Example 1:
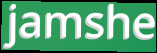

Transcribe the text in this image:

jamshe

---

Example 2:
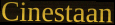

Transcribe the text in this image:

Cinestaan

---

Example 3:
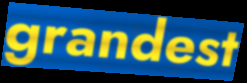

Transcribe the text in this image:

grandest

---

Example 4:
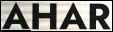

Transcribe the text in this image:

AHAR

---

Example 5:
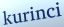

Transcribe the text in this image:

kurinci